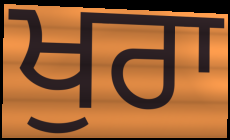
ਖੁਰਾ